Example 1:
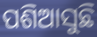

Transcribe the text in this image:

ପଶିଆସୁଛି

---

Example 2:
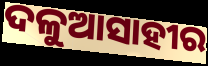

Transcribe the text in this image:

ଦଳୁଆସାହୀର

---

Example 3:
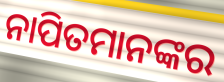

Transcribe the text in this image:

ନାପିତମାନଙ୍କର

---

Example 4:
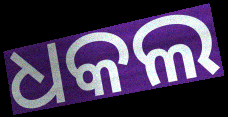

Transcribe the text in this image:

ଧକଲ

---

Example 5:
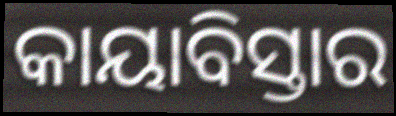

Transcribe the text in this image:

କାୟାବିସ୍ତାର